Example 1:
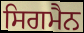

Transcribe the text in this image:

ਸਿਗਮੈਨ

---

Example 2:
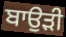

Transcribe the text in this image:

ਬਾਉੜੀ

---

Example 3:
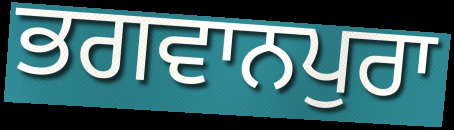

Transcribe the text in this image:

ਭਗਵਾਨਪੁਰਾ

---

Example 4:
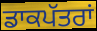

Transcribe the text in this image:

ਡਾਕਪੱਤਰਾਂ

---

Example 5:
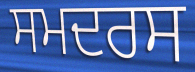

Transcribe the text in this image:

ਸਮਦਰਸ